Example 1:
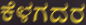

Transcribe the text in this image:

ಕೆಳಗದರ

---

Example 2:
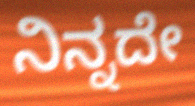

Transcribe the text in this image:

ನಿನ್ನದೇ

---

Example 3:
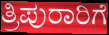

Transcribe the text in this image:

ತ್ರಿಪುರಾರಿಗೆ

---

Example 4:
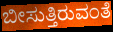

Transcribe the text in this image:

ಬೀಸುತ್ತಿರುವಂತೆ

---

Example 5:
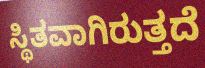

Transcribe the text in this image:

ಸ್ಥಿತವಾಗಿರುತ್ತದೆ